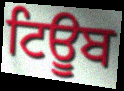
ਟਿਊੂਬ